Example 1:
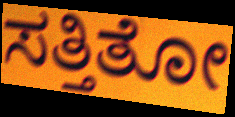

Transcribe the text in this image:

ಸತ್ತಿತೋ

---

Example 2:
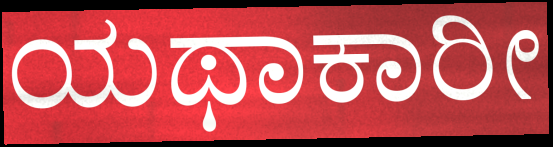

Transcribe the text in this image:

ಯಥಾಕಾರೀ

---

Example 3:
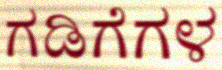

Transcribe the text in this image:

ಗಡಿಗೆಗಳ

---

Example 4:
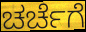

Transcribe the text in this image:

ಚರ್ಚೆಗೆ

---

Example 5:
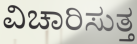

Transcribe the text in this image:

ವಿಚಾರಿಸುತ್ತ